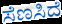
ಸೆಣಸಿದೆ